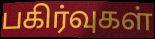
பகிர்வுகள்